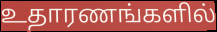
உதாரணங்களில்